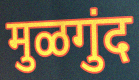
मुळगुंद